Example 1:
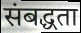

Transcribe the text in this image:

संबद्धता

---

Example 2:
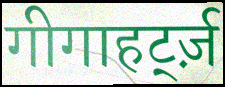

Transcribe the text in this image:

गीगाहर्ट्ज़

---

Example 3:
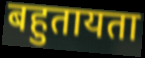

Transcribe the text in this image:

बहुतायता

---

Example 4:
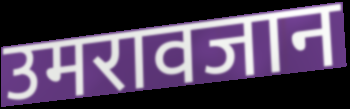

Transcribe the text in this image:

उमरावजान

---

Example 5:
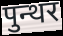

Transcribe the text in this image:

पुन्थर